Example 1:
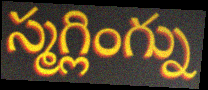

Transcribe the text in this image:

స్మగ్లింగ్ను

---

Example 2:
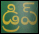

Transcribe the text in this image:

డ్రిప్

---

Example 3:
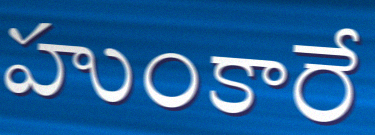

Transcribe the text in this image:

హుంకారే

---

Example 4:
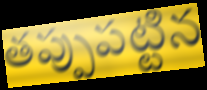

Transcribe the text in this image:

తప్పుపట్టిన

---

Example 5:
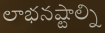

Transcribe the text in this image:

లాభనష్టాల్ని